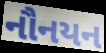
નૌનયન